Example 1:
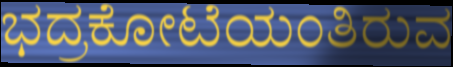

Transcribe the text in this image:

ಭದ್ರಕೋಟೆಯಂತಿರುವ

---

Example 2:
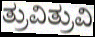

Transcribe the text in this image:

ತ್ರುವಿತ್ರುವಿ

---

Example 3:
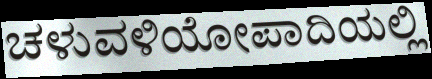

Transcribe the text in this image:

ಚಳುವಳಿಯೋಪಾದಿಯಲ್ಲಿ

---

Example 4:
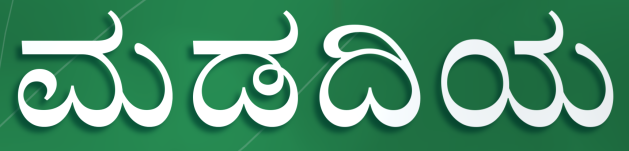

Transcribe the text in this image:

ಮಡದಿಯ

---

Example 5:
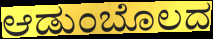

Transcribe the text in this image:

ಆಡುಂಬೊಲದ